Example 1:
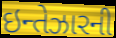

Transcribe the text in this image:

ઇન્તેઝારની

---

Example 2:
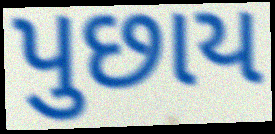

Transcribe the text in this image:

પુછાય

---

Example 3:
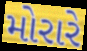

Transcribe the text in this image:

મોરારે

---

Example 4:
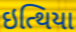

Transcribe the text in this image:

ઇત્થિયા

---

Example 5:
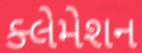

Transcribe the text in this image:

ક્લેમેશન